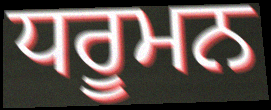
ਧਰੂਮਨ